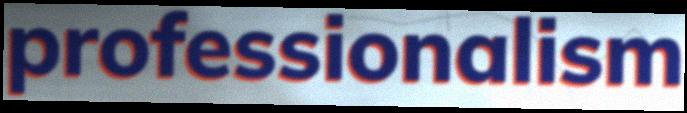
professionalism